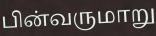
பின்வருமாறு